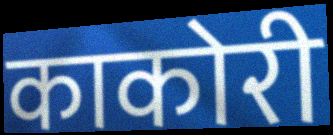
काकोरी